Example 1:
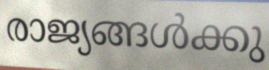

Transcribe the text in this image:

രാജ്യങ്ങൾക്കു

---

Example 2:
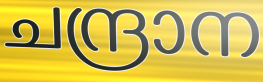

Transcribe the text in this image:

ചന്ദ്രാന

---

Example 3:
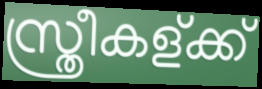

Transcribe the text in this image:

സ്ത്രീകള്ക്ക്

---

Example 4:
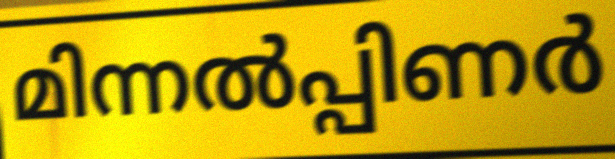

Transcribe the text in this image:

മിന്നൽപ്പിണർ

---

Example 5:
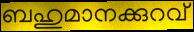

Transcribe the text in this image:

ബഹുമാനക്കുറവ്